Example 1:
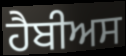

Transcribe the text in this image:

ਹੈਬੀਅਸ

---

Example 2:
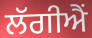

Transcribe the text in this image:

ਲੱਗੀਐਂ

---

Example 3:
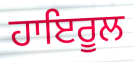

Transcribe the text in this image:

ਹਾਇਰੂਲ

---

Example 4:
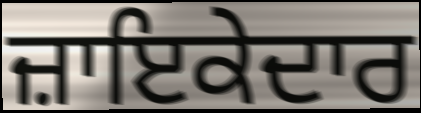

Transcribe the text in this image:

ਜ਼ਾਇਕੇਦਾਰ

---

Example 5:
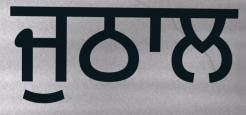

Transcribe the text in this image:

ਜੁਠਾਲ